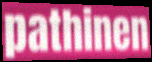
pathinen